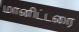
மானிட்டரை